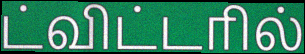
ட்விட்டரில்